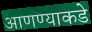
आणण्याकडे